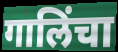
गालिंचा